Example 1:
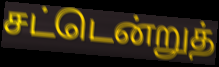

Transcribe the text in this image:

சட்டென்றுத்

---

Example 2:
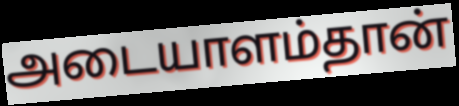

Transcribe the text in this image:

அடையாளம்தான்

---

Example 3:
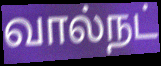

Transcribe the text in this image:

வால்நட்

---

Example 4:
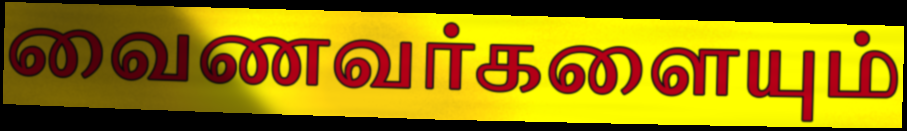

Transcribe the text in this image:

வைணவர்களையும்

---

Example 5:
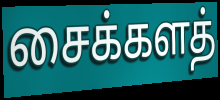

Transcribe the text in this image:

சைக்களத்